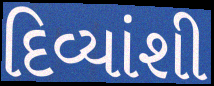
દિવ્યાંશી